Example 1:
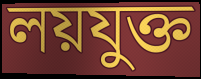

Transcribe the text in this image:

লয়যুক্ত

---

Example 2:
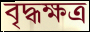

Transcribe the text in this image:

বৃদ্ধক্ষত্র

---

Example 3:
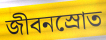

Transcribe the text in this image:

জীবনস্রোত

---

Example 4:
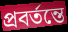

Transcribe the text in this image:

প্রবর্তন্তে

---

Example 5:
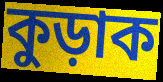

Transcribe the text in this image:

কুড়াক